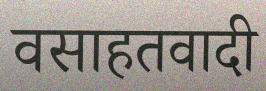
वसाहतवादी